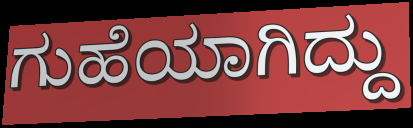
ಗುಹೆಯಾಗಿದ್ದು